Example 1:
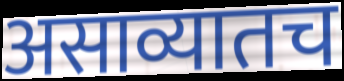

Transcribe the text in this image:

असाव्यातच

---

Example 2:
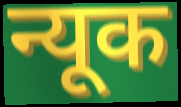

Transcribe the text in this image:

न्यूक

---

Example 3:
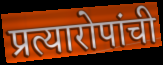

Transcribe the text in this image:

प्रत्यारोपांची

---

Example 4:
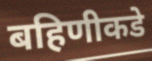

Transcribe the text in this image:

बहिणीकडे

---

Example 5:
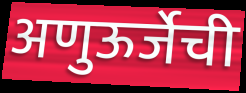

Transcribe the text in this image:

अणुऊर्जेची